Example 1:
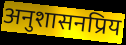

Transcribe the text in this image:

अनुशासनप्रिय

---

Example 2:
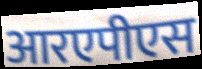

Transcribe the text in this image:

आरएपीएस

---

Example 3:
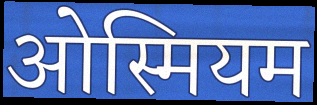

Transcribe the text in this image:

ओस्मियम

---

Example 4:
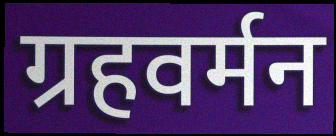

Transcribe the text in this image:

ग्रहवर्मन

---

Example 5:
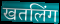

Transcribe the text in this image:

खतलिंग